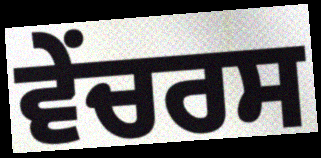
ਵੇਂਚਰਸ